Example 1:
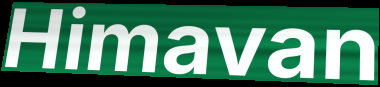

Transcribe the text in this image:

Himavan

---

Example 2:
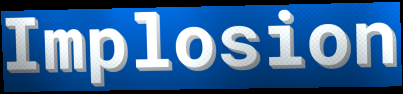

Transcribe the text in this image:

Implosion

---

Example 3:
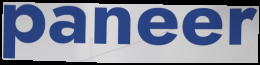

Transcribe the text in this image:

paneer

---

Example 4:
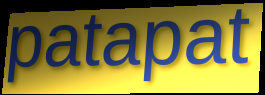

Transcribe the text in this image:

patapat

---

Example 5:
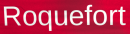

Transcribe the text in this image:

Roquefort